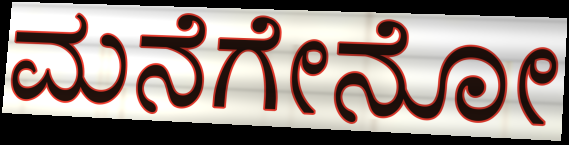
ಮನೆಗೇನೋ